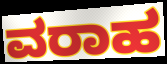
ವರಾಹ